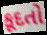
કૂદતો